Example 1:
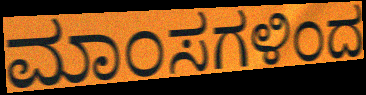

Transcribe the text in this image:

ಮಾಂಸಗಳಿಂದ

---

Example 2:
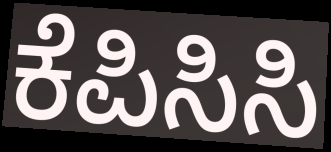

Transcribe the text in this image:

ಕೆಪಿಸಿಸಿ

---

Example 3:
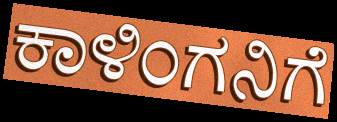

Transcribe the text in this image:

ಕಾಳಿಂಗನಿಗೆ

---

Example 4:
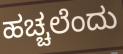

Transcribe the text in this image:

ಹಚ್ಚಲೆಂದು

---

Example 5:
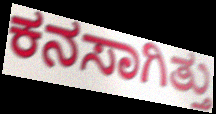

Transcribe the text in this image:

ಕನಸಾಗಿತ್ತು